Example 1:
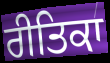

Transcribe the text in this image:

ਰੀਤਿਕਾ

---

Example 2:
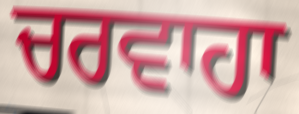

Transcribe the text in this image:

ਚਰਵਾਹਾ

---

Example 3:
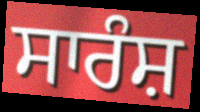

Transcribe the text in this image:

ਸਾਰੰਸ਼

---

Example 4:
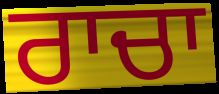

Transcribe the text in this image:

ਰਾਚਾ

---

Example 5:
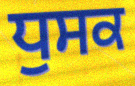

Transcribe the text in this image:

ਧੁਸਕ